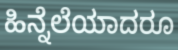
ಹಿನ್ನೆಲೆಯಾದರೂ